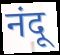
नंदू